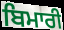
ਬਿਮਾਰੀ